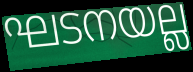
ഘടനയല്ല